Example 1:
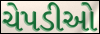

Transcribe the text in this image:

ચેપડીઓ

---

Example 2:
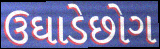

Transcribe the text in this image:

ઉઘાડેછોગ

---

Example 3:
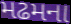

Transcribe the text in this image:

મઢમના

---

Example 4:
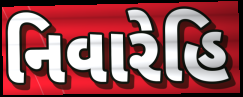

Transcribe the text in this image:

નિવારેહિ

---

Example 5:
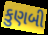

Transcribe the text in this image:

કુણબી